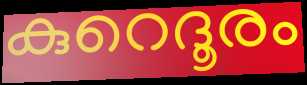
കുറെദൂരം